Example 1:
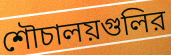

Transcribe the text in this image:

শৌচালয়গুলির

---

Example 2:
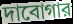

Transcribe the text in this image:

দাবোগার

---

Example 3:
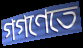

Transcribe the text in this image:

গগণেতে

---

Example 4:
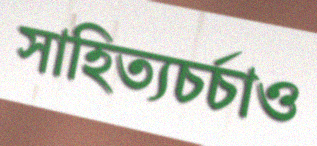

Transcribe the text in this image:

সাহিত্যচর্চাও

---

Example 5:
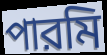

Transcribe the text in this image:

পারমি